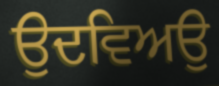
ਉਦਵਿਅਉ